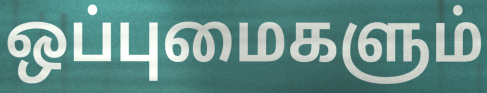
ஒப்புமைகளும்